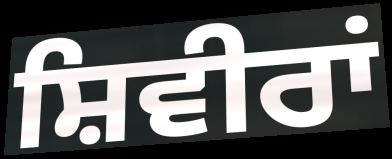
ਸ਼ਿਵੀਰਾਂ